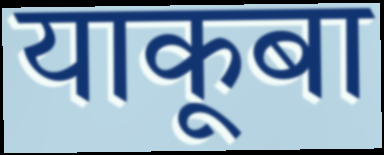
याकूबा